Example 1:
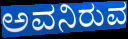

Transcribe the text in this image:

ಅವನಿರುವ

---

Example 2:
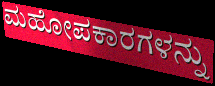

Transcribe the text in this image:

ಮಹೋಪಕಾರಗಳನ್ನು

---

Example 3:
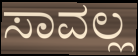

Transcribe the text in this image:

ಸಾವಲ್ಲ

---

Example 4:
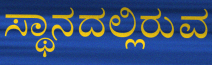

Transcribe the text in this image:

ಸ್ಥಾನದಲ್ಲಿರುವ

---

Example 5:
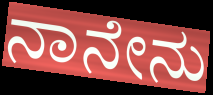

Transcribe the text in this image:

ನಾನೇನು